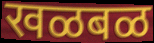
खळबळ